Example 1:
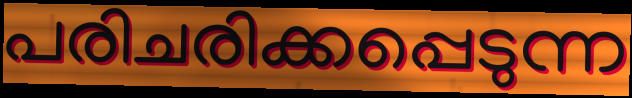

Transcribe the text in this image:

പരിചരിക്കപ്പെടുന്ന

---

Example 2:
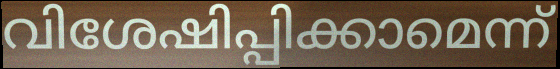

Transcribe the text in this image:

വിശേഷിപ്പിക്കാമെന്ന്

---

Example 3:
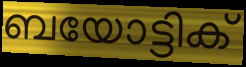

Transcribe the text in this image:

ബയോട്ടിക്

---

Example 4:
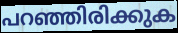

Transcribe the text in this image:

പറഞ്ഞിരിക്കുക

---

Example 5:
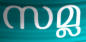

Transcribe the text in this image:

സമ്ല